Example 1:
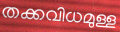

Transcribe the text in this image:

തക്കവിധമുള്ള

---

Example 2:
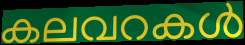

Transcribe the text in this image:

കലവറകൾ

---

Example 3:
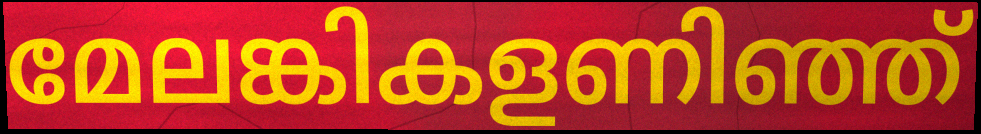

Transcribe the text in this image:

മേലങ്കികളണിഞ്ഞ്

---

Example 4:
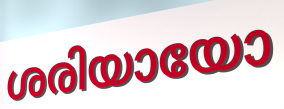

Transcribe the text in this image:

ശരിയായോ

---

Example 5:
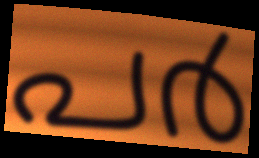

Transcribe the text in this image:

പർ